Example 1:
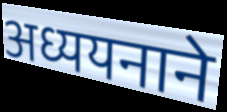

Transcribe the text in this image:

अध्ययनाने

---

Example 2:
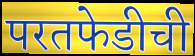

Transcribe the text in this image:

परतफेडीची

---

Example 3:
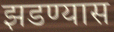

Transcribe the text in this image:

झडण्यास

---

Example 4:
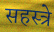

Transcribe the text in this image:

सहस्त्रे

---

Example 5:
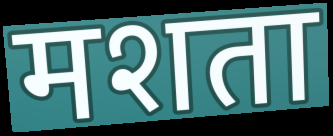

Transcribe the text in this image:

मशता